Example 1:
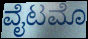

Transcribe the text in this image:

ವೈಟಮೊ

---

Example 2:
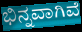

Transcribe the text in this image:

ಭಿನ್ನವಾಗಿವೆ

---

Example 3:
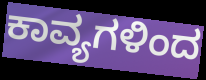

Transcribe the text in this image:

ಕಾವ್ಯಗಳಿಂದ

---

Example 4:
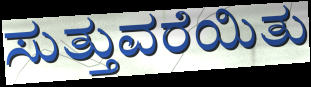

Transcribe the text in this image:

ಸುತ್ತುವರೆಯಿತು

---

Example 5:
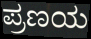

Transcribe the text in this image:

ಪ್ರಣಯ